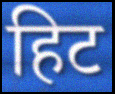
हिट